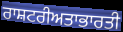
ਰਾਸ਼ਟਰੀਅਤਾਭਾਰਤੀ